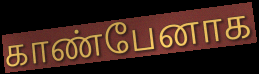
காண்பேனாக